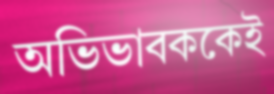
অভিভাবককেই